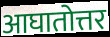
आघातोत्तर